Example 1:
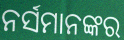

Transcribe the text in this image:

ନର୍ସମାନଙ୍କର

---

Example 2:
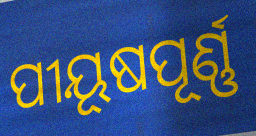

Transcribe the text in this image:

ପୀୟୂଷପୂର୍ଣ୍ଣ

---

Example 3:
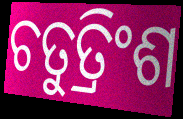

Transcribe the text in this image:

ଚତୁତ୍ରିଂଶ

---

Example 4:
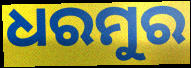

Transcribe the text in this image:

ଧରମୁର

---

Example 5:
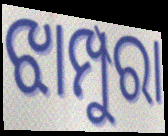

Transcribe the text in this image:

ଝାମ୍ପୁରା